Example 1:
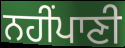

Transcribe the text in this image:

ਨਹੀਂਪਾਣੀ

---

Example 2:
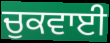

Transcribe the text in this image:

ਚੁਕਵਾਈ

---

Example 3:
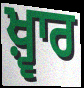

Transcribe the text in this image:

ਖ਼੍ਵਾਰ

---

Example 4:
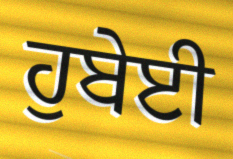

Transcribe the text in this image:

ਹੁਬੇਈ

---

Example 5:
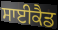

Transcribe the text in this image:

ਸਾਈਕੈਡ